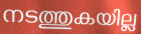
നടത്തുകയില്ല